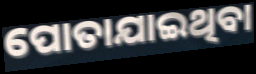
ପୋତାଯାଇଥିବା